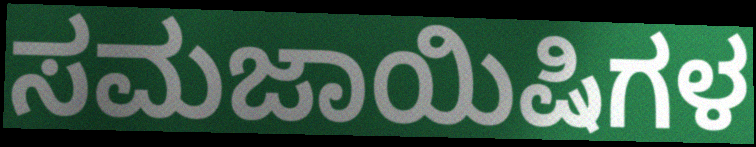
ಸಮಜಾಯಿಷಿಗಳ